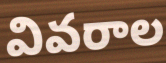
వివరాల